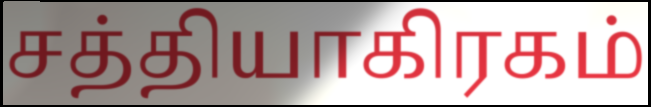
சத்தியாகிரகம்